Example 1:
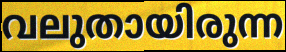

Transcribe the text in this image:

വലുതായിരുന്ന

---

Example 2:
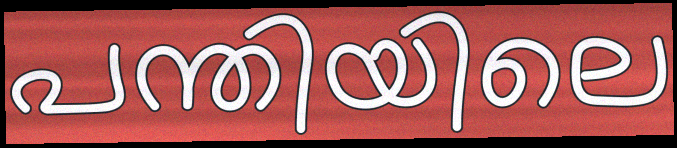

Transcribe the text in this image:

പന്തിയിലെ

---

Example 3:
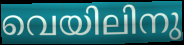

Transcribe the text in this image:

വെയിലിനു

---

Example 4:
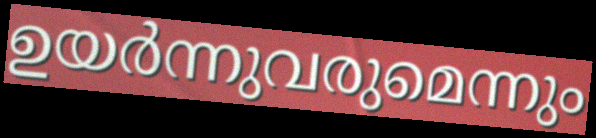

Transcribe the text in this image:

ഉയർന്നുവരുമെന്നും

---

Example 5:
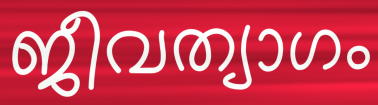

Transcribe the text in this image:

ജീവത്യാഗം